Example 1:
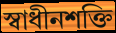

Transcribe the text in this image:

স্বাধীনশক্তি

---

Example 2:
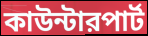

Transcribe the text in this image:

কাউন্টারপার্ট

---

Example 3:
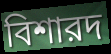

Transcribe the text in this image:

বিশারদ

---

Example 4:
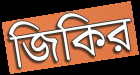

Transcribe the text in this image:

জিকির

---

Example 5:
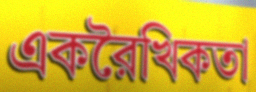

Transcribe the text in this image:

একরৈখিকতা